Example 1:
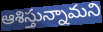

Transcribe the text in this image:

ఆశిస్తున్నామని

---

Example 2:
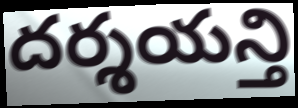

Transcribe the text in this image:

దర్శయన్తి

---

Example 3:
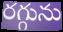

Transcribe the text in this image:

రగ్గును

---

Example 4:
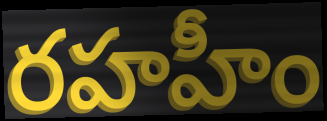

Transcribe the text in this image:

రహహీం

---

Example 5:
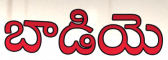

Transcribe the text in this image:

బాడియె